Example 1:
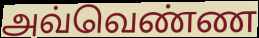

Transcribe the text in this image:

அவ்வெண்ண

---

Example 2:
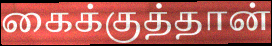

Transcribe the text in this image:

கைக்குத்தான்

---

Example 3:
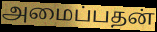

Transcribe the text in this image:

அமைப்பதன்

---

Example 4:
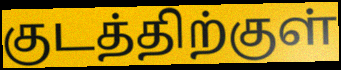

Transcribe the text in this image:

குடத்திற்குள்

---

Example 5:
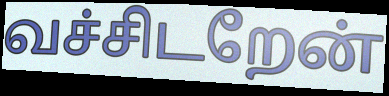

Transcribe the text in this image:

வச்சிடறேன்